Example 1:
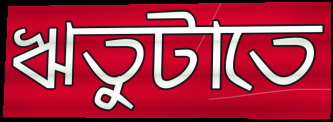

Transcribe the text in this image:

ঋতুটাতে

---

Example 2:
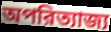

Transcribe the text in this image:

অপরিত্যাজ্য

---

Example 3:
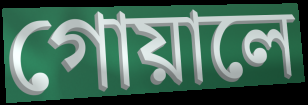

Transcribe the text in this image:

গোয়ালে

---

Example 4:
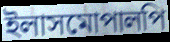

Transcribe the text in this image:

ইলাসমোপালপি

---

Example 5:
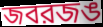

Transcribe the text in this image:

জবরজঙ